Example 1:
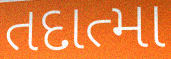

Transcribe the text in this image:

તદાત્મા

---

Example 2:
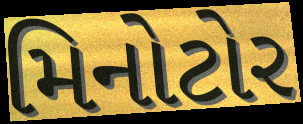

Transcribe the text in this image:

મિનોટોર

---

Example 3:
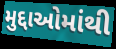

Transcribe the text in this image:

મુદ્દાઓમાંથી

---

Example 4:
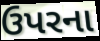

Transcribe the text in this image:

ઉપરના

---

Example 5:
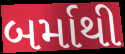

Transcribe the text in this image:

બર્માથી